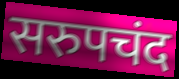
सरुपचंद